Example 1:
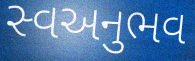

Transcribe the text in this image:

સ્વઅનુભવ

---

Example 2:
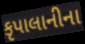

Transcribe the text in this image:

કૃપાલાનીના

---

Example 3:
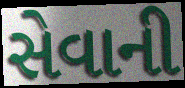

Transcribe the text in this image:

સેવાની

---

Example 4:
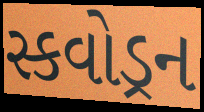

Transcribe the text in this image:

સ્કવોડ્રન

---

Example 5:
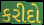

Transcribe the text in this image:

કરીદો